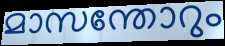
മാസന്തോറും